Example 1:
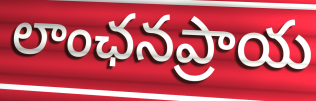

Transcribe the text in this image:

లాంఛనప్రాయ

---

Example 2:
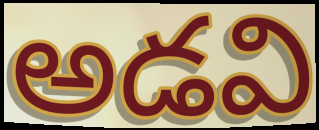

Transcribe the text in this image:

అడవి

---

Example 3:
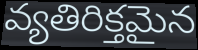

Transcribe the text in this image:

వ్యతిరిక్తమైన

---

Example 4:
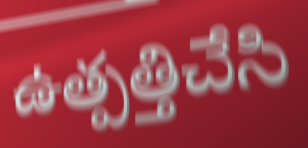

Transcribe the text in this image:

ఉత్పత్తిచేసి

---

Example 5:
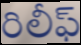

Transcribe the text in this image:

రిలీఫ్